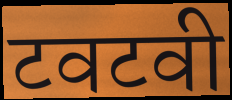
टवटवी